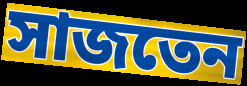
সাজতেন